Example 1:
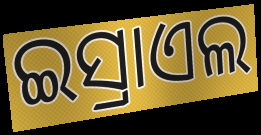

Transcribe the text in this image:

ଇସ୍ରାଏଲ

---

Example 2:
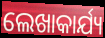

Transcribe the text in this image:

ଲେଖାକାର୍ଯ୍ୟ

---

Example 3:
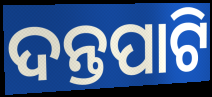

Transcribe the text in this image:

ଦନ୍ତପାଟି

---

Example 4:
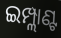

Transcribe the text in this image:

ଇମ୍ପ୍ଲାଣ୍ଟ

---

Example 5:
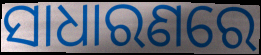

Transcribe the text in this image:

ସାଧାରଣରେ